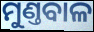
ମୁଣ୍ତବାଳ